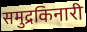
समुद्रकिनारी